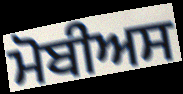
ਮੋਬੀਅਸ